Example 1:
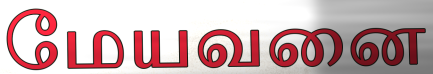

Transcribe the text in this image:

மேயவனை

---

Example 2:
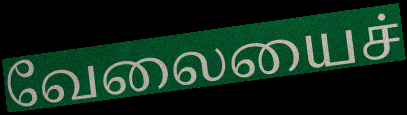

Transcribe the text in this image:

வேலையைச்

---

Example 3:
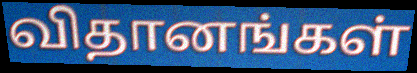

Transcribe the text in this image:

விதானங்கள்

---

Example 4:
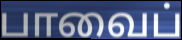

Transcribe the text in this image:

பாவைப்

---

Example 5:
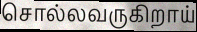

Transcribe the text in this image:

சொல்லவருகிறாய்